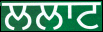
ਲਲਾਟ